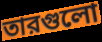
তারগুলো